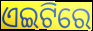
ଏଇଟିରେ